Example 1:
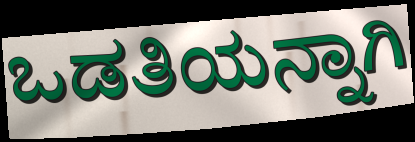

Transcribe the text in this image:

ಒಡತಿಯನ್ನಾಗಿ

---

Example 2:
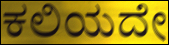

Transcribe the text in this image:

ಕಲಿಯದೇ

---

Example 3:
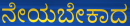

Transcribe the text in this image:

ನೇಯಬೇಕಾದ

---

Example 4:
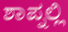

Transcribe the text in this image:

ಶಾಪ್ನಲ್ಲಿ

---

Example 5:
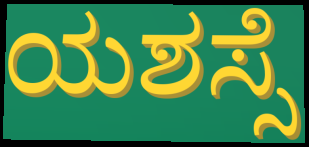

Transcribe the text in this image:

ಯಶಸ್ಸೆ